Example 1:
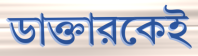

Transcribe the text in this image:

ডাক্তারকেই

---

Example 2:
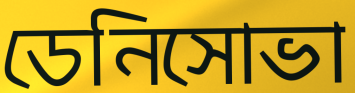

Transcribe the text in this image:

ডেনিসোভা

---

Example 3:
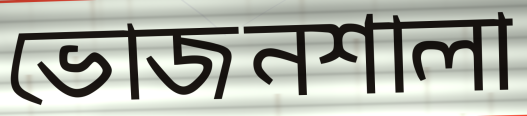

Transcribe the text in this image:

ভোজনশালা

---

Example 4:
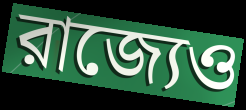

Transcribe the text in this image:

রাজ্যেও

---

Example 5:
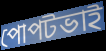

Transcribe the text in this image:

পোপটভাই